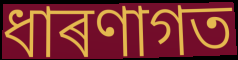
ধাৰণাগত